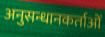
अनुसन्धानकर्ताओं